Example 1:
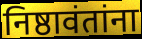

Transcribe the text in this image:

निष्ठावंतांना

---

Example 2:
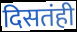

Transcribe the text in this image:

दिसतंही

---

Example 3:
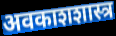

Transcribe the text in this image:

अवकाशशास्त्र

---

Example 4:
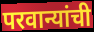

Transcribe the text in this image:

परवान्यांची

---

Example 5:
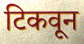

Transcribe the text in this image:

टिकवून